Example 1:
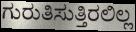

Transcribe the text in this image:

ಗುರುತಿಸುತ್ತಿರಲಿಲ್ಲ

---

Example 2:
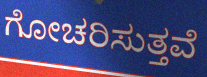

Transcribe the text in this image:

ಗೋಚರಿಸುತ್ತವೆ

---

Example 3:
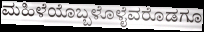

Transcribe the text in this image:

ಮಹಿಳೆಯೊಬ್ಬಳೊಳೈವರೊಡಗೂ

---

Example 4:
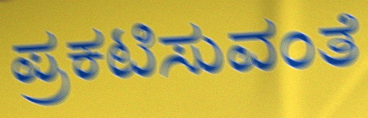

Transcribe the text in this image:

ಪ್ರಕಟಿಸುವಂತೆ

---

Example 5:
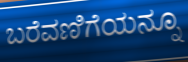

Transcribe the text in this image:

ಬರೆವಣಿಗೆಯನ್ನೂ